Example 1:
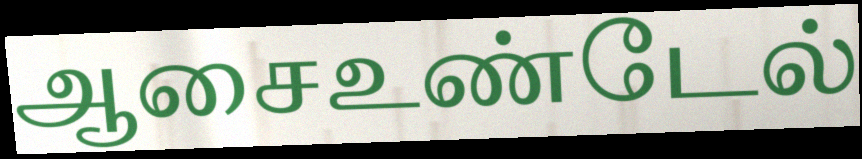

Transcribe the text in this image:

ஆசைஉண்டேல்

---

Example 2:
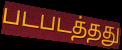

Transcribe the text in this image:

படபடத்தது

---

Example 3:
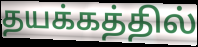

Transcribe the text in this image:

தயக்கத்தில்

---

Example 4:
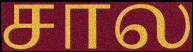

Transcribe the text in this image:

சால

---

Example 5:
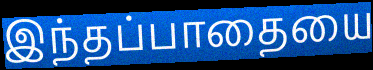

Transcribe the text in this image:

இந்தப்பாதையை